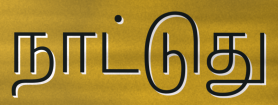
நாட்டுது